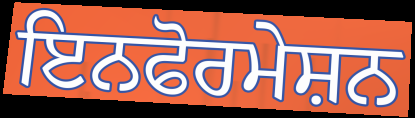
ਇਨਫੋਰਮੇਸ਼ਨ